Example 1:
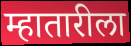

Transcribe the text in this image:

म्हातारीला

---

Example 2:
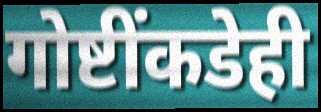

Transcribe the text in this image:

गोष्टींकडेही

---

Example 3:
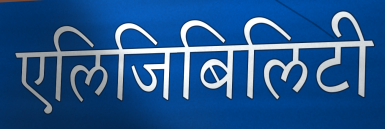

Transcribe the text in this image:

एलिजिबिलिटी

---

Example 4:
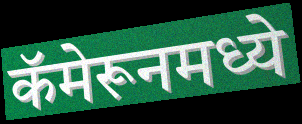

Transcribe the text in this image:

कॅमेरूनमध्ये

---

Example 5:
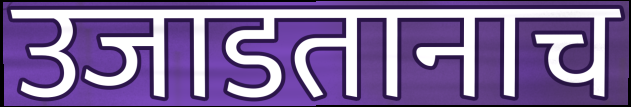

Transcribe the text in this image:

उजाडतानाच